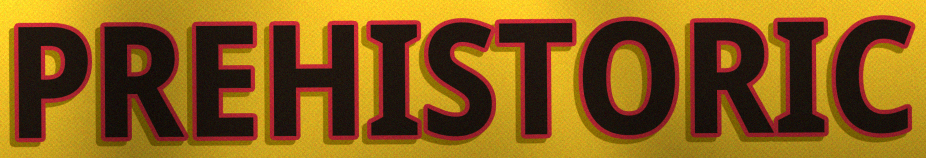
PREHISTORIC